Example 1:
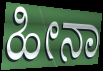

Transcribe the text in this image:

ಹೀನಾ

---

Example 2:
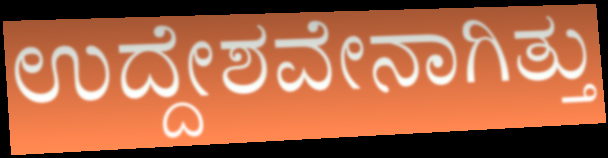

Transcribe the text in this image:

ಉದ್ದೇಶವೇನಾಗಿತ್ತು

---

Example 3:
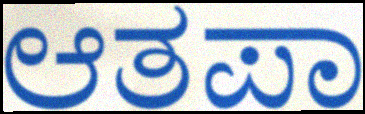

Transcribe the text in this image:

ಆತಪಾ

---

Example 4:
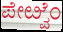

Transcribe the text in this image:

ಪೇೞ್ವೆಂ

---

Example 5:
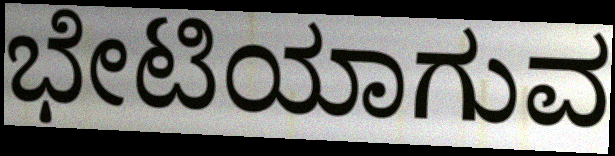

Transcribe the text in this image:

ಭೇಟಿಯಾಗುವ